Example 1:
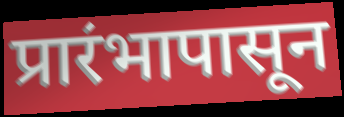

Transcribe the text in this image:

प्रारंभापासून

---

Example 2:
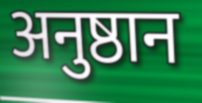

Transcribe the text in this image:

अनुष्ठान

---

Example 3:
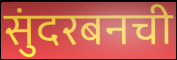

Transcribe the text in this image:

सुंदरबनची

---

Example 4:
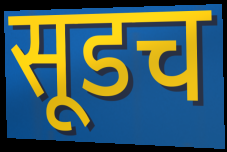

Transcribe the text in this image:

सूडच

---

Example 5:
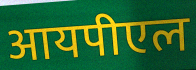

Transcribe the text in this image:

आयपीएल